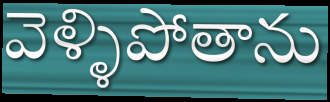
వెళ్ళిపోతాను